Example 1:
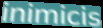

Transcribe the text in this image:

inimicis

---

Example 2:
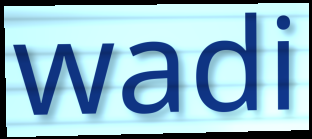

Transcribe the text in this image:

wadi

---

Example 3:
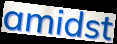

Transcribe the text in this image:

amidst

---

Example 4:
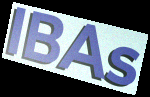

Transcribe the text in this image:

IBAs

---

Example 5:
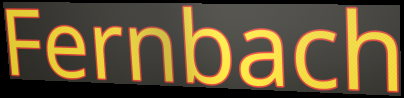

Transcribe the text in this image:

Fernbach